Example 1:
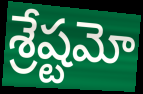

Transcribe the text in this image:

శ్రేష్టమో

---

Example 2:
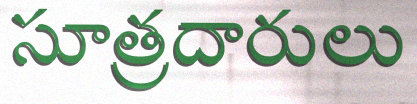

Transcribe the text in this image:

సూత్రదారులు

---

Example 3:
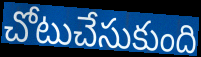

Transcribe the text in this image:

చోటుచేసుకుంది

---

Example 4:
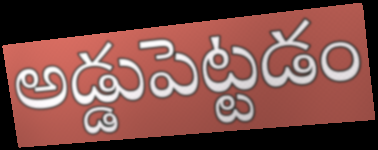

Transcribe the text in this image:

అడ్డుపెట్టడం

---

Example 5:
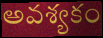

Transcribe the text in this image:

అవశ్యకం